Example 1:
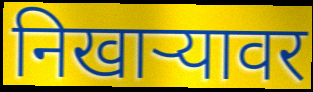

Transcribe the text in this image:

निखार्‍यावर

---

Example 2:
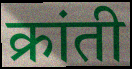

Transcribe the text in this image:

क्रांती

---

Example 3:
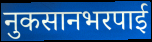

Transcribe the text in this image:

नुकसानभरपाई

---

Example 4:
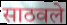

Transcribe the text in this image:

साठवले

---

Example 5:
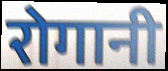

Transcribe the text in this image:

रोगानी